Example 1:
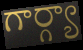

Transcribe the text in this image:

గార్గ్యా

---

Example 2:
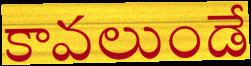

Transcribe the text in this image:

కావలుండే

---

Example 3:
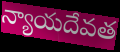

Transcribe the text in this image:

న్యాయదేవత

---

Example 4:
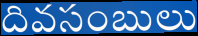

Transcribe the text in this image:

దివసంబులు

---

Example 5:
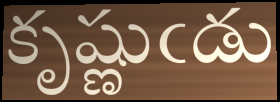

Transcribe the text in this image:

కృష్ణుఁడు